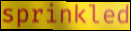
sprinkled